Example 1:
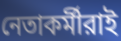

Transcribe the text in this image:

নেতাকর্মীরাই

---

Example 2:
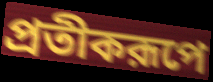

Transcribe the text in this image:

প্রতীকরূপে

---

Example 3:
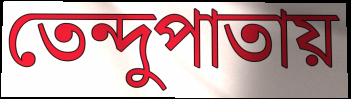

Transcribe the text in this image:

তেন্দুপাতায়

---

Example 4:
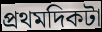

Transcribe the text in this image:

প্রথমদিকটা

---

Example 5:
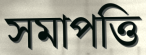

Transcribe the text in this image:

সমাপত্তি